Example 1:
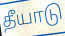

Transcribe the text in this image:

தீயாடு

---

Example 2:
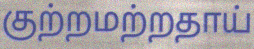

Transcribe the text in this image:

குற்றமற்றதாய்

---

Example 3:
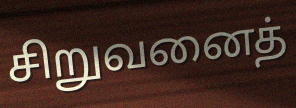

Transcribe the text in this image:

சிறுவனைத்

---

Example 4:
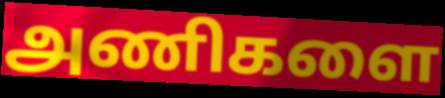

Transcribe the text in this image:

அணிகளை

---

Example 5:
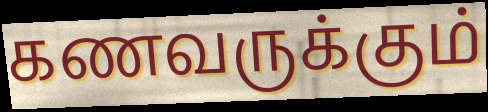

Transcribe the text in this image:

கணவருக்கும்